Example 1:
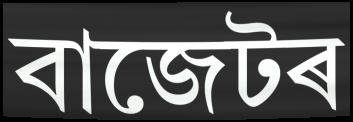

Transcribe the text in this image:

বাজেটৰ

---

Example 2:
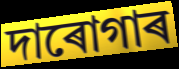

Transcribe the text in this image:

দাৰোগাৰ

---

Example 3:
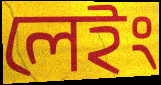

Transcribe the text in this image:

লেইং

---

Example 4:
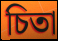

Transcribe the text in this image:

চিতা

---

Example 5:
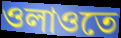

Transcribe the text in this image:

ওলাওতে